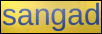
sangad